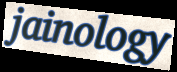
jainology